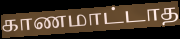
காணமாட்டாத